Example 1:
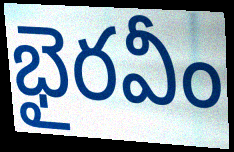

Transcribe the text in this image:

భైరవీం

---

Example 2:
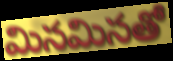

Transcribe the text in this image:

మిసమిసతో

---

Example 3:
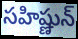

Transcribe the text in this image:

సహిష్ణున్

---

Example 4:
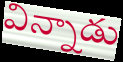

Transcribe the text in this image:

విన్నాడు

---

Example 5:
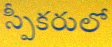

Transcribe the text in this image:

స్పీకరులో